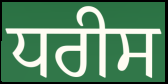
ਧਰੀਸ